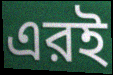
এরই